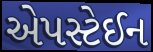
એપસ્ટેઈન